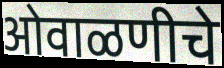
ओवाळणीचे